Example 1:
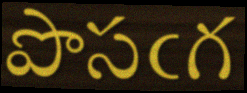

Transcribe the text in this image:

పొసఁగ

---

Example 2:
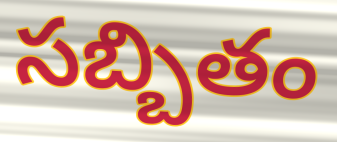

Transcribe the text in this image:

సబ్బితం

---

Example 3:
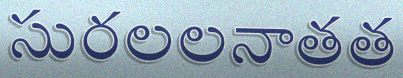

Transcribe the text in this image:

సురలలనాతత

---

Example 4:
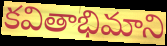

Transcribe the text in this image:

కవితాభిమాని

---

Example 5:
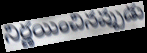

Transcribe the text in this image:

నిర్ణయించినప్పుడు